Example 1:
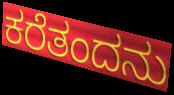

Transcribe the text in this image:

ಕರೆತಂದನು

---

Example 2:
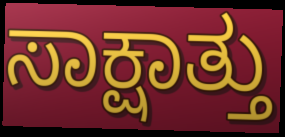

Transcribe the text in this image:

ಸಾಕ್ಷಾತ್ತು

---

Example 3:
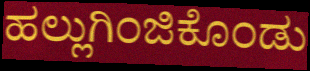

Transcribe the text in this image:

ಹಲ್ಲುಗಿಂಜಿಕೊಂಡು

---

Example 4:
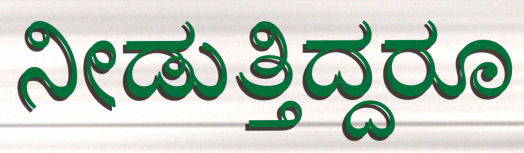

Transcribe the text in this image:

ನೀಡುತ್ತಿದ್ದರೂ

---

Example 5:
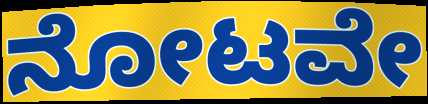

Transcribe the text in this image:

ನೋಟವೇ